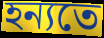
হন্যতে